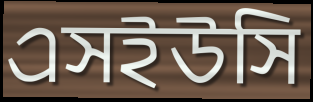
এসইউসি